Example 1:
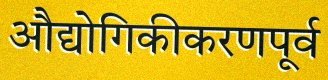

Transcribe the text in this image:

औद्योगिकीकरणपूर्व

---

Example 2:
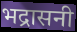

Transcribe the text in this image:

भद्रासनी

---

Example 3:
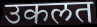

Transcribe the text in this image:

उकलत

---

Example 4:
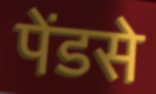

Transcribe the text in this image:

पेंडसे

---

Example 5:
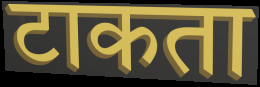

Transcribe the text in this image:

टाकता